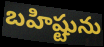
బహిష్టును